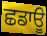
ਛਡਾਊ